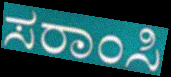
ಸರಾಂಸಿ